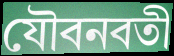
যৌবনবতী